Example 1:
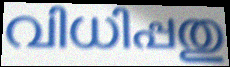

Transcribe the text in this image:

വിധിപ്പതു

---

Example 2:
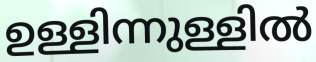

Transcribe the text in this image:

ഉള്ളിന്നുള്ളിൽ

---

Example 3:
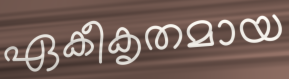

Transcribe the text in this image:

ഏകീകൃതമായ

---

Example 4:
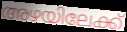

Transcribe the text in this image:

അഴയിലേക്ക്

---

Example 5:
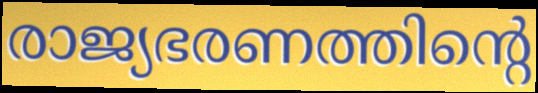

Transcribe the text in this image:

രാജ്യഭരണത്തിന്റെ